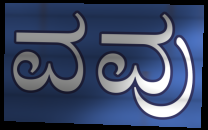
ವವು